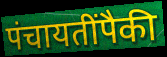
पंचायतींपैकी